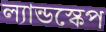
ল্যান্ডস্কেপ